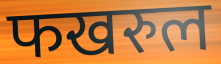
फखरुल